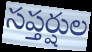
సప్తర్షుల